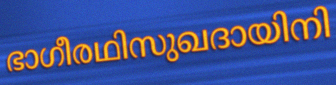
ഭാഗീരഥിസുഖദായിനി